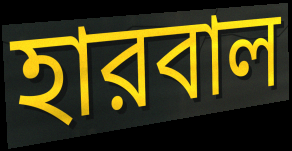
হারবাল